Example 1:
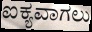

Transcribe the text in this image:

ಐಕ್ಯವಾಗಲು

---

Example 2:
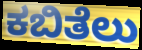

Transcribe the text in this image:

ಕಬಿತೆಲು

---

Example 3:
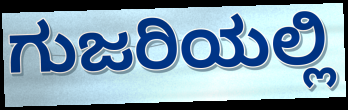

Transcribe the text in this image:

ಗುಜರಿಯಲ್ಲಿ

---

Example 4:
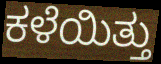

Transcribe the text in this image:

ಕಳೆಯಿತ್ತು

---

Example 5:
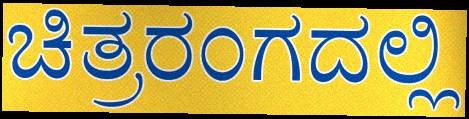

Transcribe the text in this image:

ಚಿತ್ರರಂಗದಲ್ಲಿ